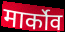
मार्कोव